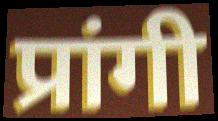
प्रांगी